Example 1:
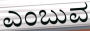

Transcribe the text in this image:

ಎಂಬುವ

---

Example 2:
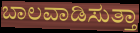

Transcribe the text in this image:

ಬಾಲವಾಡಿಸುತ್ತಾ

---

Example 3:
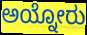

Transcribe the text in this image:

ಅಯ್ನೋರು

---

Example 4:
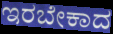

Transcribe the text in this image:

ಇರಬೇಕಾದ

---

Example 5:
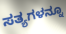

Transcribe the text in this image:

ಸತ್ಯಗಳನ್ನೂ